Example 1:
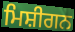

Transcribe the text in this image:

ਮਿਸ਼ੀਗਨ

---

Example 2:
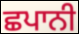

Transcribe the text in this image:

ਛਪਾਨੀ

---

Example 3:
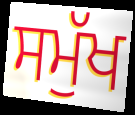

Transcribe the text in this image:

ਸਮੁੱਖ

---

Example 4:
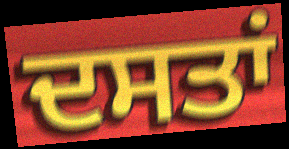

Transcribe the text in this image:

ਦਸਤਾਂ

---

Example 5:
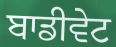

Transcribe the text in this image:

ਬਾਡੀਵੇਟ